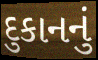
દુકાનનું